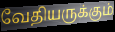
வேதியருக்கும்